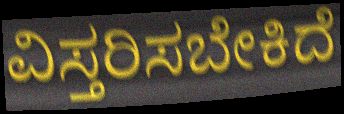
ವಿಸ್ತರಿಸಬೇಕಿದೆ